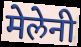
मेलेनी